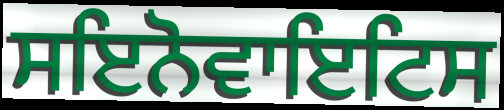
ਸਇਨੋਵਾਇਟਿਸ